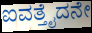
ಐವತ್ತೈದನೇ